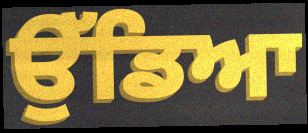
ਉੱਡਿਆ